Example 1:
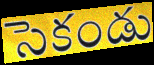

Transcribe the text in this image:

సెకండు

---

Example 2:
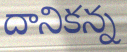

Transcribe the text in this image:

దానికన్న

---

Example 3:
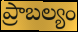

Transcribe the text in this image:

ప్రాబల్యం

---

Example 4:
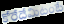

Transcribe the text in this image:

కోరేదేమిటంటే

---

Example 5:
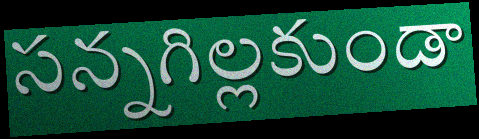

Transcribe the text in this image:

సన్నగిల్లకుండా